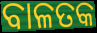
ବାଳତକ